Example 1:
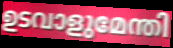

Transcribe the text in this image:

ഉടവാളുമേന്തി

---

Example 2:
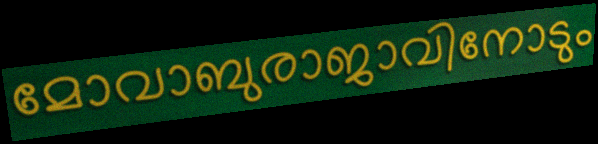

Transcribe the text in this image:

മോവാബുരാജാവിനോടും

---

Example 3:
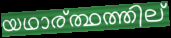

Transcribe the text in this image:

യഥാര്ത്ഥത്തില്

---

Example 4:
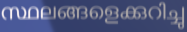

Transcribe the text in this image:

സ്ഥലങ്ങളെക്കുറിച്ചു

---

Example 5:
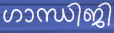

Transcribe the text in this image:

ഗാന്ധിജി